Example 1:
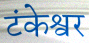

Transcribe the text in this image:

टंकेश्वर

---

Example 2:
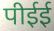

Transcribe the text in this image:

पीईई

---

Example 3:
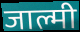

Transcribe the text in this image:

जाल्मी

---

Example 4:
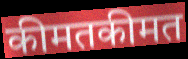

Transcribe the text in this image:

कीमतकीमत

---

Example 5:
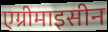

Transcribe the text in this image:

एग्रीमाइसीन